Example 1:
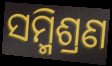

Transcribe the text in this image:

ସମ୍ମିଶ୍ରଣ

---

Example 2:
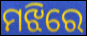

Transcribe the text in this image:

ମଝିରେ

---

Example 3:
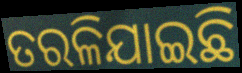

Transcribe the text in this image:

ତରଳିଯାଇଛି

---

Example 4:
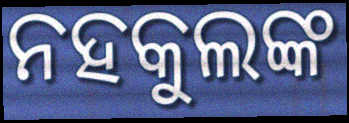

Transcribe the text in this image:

ନହକୁଲଙ୍କ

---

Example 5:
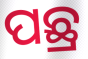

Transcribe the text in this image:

ପଛ୍ର